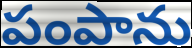
పంపాను